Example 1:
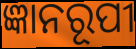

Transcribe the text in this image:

ଜ୍ଞାନରୂପୀ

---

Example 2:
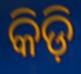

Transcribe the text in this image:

କିଡ଼ି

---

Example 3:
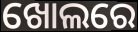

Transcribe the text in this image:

ଖୋଲରେ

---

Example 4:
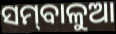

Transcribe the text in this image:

ସମ୍‌ବାଳୁଆ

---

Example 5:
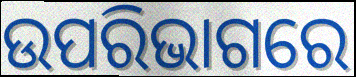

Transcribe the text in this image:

ଉପରିଭାଗରେ